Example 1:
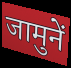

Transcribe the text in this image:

जामुनें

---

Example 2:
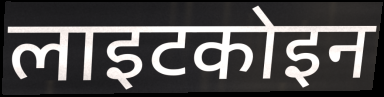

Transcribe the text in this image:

लाइटकोइन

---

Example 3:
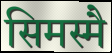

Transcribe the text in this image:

सिमस्मै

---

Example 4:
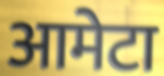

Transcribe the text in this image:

आमेटा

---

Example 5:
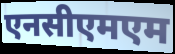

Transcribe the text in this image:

एनसीएमएम